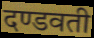
दण्डवती